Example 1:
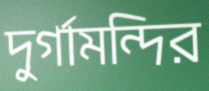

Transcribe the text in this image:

দুর্গামন্দির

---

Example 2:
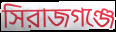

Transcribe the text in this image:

সিরাজগঞ্জে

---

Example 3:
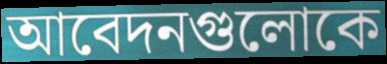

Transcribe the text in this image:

আবেদনগুলোকে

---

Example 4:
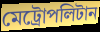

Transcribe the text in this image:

মেট্রোপলিটান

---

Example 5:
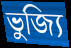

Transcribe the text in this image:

ভুজ্যি